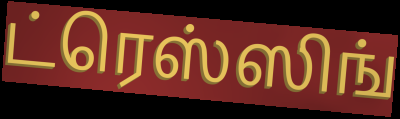
ட்ரெஸ்ஸிங்